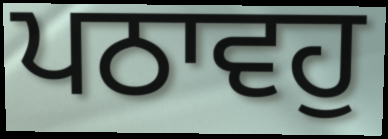
ਪਠਾਵਹੁ